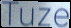
Tuze